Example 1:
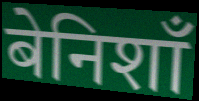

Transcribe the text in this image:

बेनिशाँ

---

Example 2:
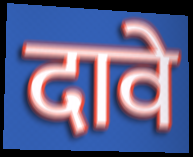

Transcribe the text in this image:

दावे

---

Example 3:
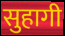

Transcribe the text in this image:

सुहागी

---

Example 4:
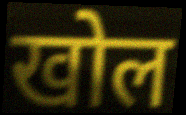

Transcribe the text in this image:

खोल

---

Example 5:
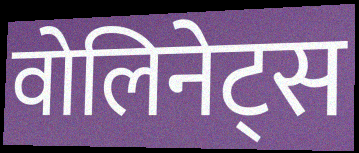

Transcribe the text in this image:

वोलिनेट्स